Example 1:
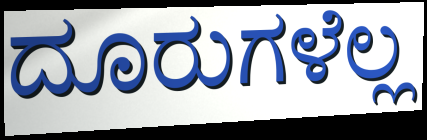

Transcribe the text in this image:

ದೂರುಗಳೆಲ್ಲ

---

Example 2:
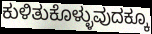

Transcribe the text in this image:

ಕುಳಿತುಕೊಳ್ಳುವುದಕ್ಕೂ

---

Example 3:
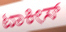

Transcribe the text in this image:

ಟಾಕೀಸ್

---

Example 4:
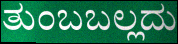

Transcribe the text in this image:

ತುಂಬಬಲ್ಲದು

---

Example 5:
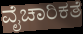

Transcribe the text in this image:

ವೈಚಾರಿಕತೆ